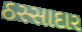
ઠસ્સાદાર